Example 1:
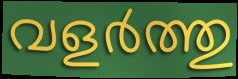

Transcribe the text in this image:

വളർത്തു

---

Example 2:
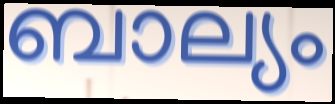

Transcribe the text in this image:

ബാല്യം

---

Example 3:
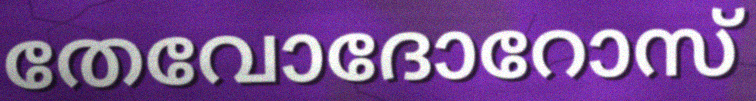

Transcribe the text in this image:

തേവോദോറോസ്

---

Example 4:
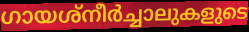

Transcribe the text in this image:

ഗായശ്നീർച്ചാലുകളുടെ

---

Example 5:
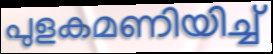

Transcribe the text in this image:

പുളകമണിയിച്ച്